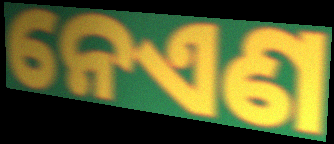
ନେଏଣ